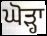
ਘੋੜ੍ਹਾ